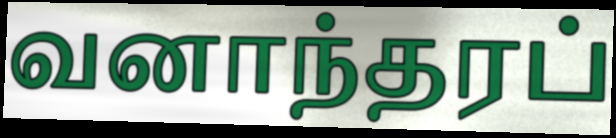
வனாந்தரப்